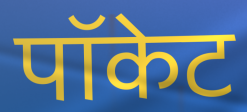
पॉकेट